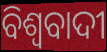
ବିଶ୍ଵବାଦୀ